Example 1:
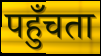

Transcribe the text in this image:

पहुँचता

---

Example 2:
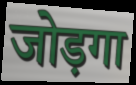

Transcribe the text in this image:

जोड़गा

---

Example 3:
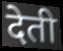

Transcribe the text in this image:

देती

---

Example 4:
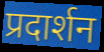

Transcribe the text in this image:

प्रदार्शन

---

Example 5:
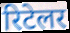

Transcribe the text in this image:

रिटेलर